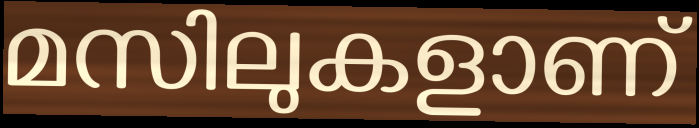
മസിലുകളാണ്